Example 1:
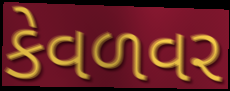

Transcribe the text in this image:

કેવળવર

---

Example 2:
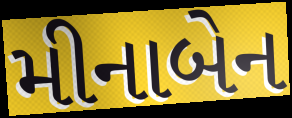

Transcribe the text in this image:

મીનાબેન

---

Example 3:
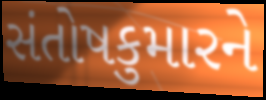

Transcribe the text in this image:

સંતોષકુમારને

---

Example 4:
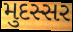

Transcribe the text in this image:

મુદસ્સર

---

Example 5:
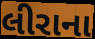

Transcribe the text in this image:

લીરાના